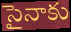
సైనాకు